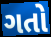
ગતો